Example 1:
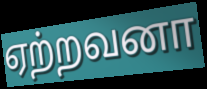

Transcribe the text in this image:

ஏற்றவனா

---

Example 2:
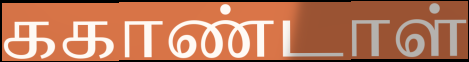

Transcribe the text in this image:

ககாண்டாள்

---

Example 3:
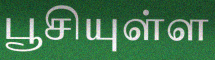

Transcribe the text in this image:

பூசியுள்ள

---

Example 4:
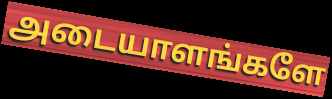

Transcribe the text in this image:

அடையாளங்களே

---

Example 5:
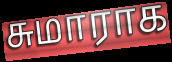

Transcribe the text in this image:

சுமாராக